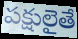
పక్షులైతే